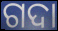
ଗଦା